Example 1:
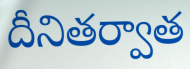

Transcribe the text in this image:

దీనితర్వాత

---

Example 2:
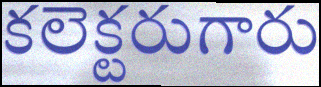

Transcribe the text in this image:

కలెక్టరుగారు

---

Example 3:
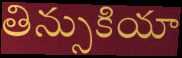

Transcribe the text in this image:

తిన్సుకియా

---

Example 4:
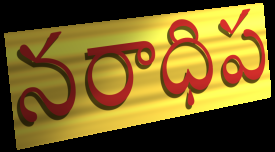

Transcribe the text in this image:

నరాధిప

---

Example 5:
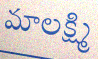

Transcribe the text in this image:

మాలక్ష్మి